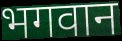
भगवान